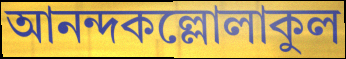
আনন্দকল্লোলাকুল